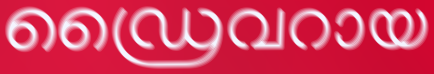
ഡ്രൈവറായ